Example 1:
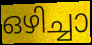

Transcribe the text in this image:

ഒഴിച്ചാ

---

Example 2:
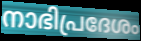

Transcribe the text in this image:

നാഭിപ്രദേശം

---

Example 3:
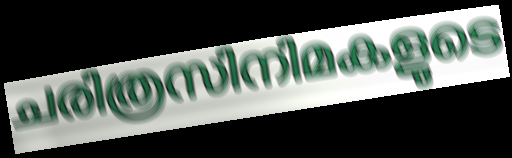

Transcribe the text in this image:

ചരിത്രസിനിമകളുടെ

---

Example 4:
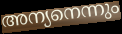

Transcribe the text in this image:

അന്യനെന്നും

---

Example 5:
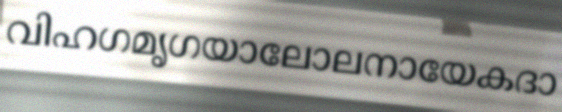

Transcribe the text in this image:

വിഹഗമൃഗയാലോലനായേകദാ